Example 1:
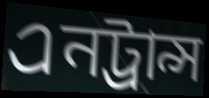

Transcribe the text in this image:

এনট্রান্স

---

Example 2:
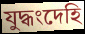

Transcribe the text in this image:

যুদ্ধংদেহি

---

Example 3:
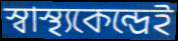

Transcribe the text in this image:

স্বাস্থ্যকেন্দ্রেই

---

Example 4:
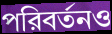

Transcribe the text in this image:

পরিবর্তনও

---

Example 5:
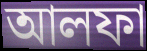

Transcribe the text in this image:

আলফা